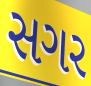
સગર